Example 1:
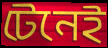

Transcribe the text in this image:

টেনেই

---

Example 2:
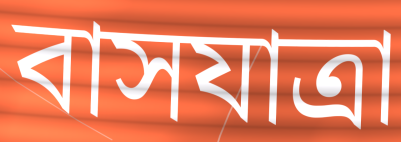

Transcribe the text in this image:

বাসযাত্রা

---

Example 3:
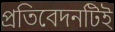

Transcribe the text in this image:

প্রতিবেদনটিই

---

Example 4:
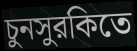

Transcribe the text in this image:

চুনসুরকিতে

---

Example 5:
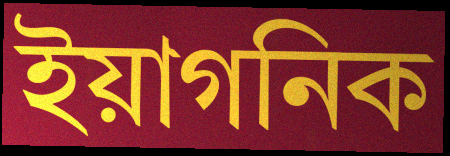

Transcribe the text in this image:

ইয়াগনিক